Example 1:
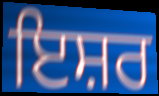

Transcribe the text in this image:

ਇਸ਼ਰ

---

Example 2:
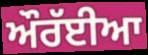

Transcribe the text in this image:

ਔਰੱਈਆ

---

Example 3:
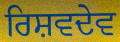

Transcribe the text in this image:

ਰਿਸ਼ਵਦੇਵ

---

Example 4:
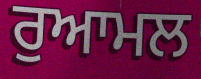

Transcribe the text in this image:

ਰੁਆਮਲ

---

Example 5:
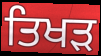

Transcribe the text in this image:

ਤਿਖੜ